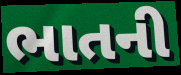
ભાતની